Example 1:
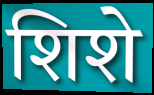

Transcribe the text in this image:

शिशे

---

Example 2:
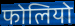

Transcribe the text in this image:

फोलियो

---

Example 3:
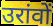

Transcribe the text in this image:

उरांवों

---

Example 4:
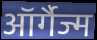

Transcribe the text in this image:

ऑर्गैज्म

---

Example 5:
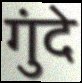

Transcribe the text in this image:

गुंदे